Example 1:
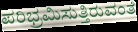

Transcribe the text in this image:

ಪರಿಭ್ರಮಿಸುತ್ತಿರುವಂತೆ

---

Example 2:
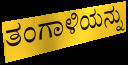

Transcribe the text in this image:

ತಂಗಾಳಿಯನ್ನು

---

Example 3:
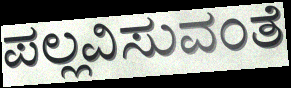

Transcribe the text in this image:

ಪಲ್ಲವಿಸುವಂತೆ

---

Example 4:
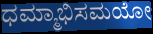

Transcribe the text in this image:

ಧಮ್ಮಾಭಿಸಮಯೋ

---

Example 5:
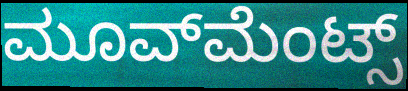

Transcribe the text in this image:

ಮೂವ್‍ಮೆಂಟ್ಸ್